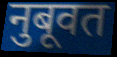
नुबूवत